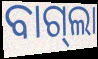
ବାଗ୍‍ଲା